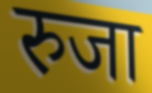
रुजा